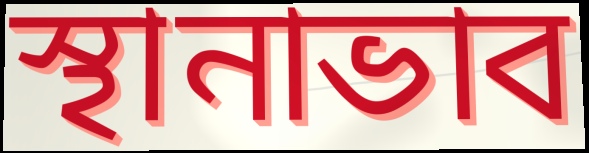
স্থানাভাব